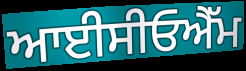
ਆਈਸੀਓਐੱਮ